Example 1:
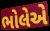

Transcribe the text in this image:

ભોલેએ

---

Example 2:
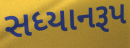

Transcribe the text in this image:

સધ્યાનરૂપ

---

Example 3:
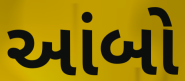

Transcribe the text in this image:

આંબો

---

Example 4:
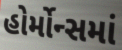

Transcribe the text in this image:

હોર્મોન્સમાં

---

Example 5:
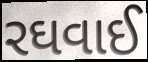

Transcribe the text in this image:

રઘવાઈ